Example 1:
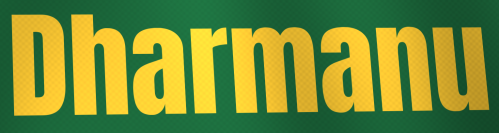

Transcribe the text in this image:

Dharmanu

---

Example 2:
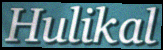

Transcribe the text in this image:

Hulikal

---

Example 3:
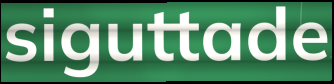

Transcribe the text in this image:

siguttade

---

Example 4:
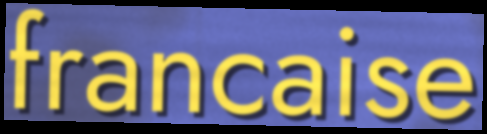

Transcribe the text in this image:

francaise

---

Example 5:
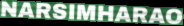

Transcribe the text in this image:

NARSIMHARAO